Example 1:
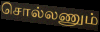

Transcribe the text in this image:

சொல்லணும்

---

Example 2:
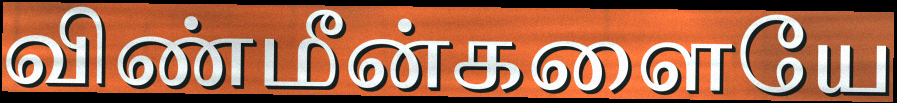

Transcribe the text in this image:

விண்மீன்களையே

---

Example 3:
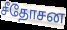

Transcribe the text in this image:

சீதோசன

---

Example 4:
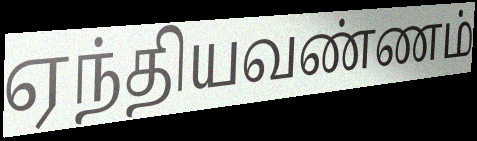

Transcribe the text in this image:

ஏந்தியவண்ணம்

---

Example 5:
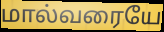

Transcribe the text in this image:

மால்வரையே